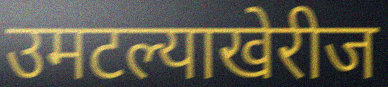
उमटल्याखेरीज